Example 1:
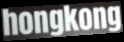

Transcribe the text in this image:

hongkong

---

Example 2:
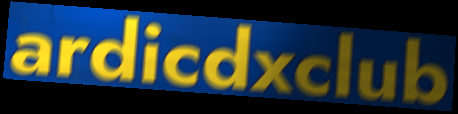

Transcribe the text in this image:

ardicdxclub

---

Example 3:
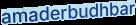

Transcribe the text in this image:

amaderbudhbar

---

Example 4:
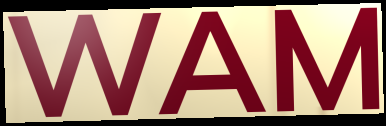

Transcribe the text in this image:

WAM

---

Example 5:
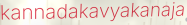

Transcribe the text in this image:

kannadakavyakanaja